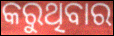
କରୁଥିବାର